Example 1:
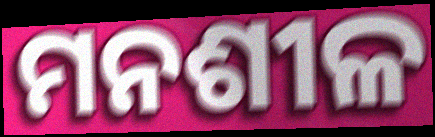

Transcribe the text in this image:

ମନଶୀଳ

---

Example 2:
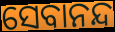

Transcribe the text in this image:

ସେବାନନ୍ଦ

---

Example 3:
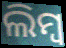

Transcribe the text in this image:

ଲିମ୍ବ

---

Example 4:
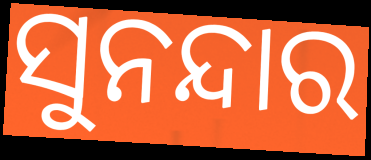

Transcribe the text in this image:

ସୁନନ୍ଦାର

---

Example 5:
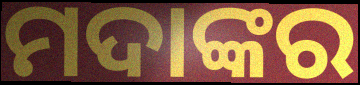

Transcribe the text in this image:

ମଦାଙ୍କର